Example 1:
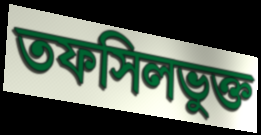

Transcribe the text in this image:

তফসিলভুক্ত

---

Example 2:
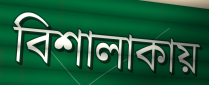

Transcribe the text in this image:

বিশালাকায়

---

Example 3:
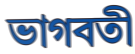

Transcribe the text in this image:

ভাগবতী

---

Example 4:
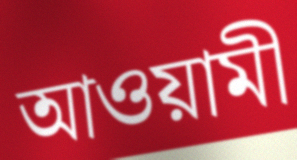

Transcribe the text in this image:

আওয়ামী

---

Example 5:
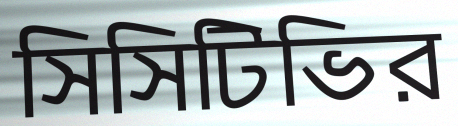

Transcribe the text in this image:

সিসিটিভির